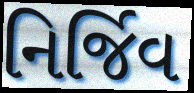
નિર્જિવ